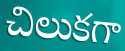
చిలుకగా